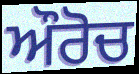
ਔਰੋਚ